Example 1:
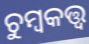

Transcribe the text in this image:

ଚୁମ୍ବକତ୍ତ୍ୱ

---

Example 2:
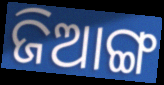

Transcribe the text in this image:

ଜିଆଙ୍ଗ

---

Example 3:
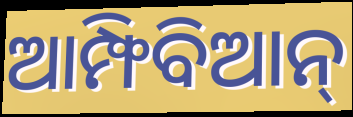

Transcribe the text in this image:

ଆମ୍ଫିବିଆନ୍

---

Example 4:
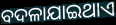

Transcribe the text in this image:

ବଦଳାଯାଇଥାଏ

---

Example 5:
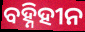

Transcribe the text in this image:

ବହ୍ନିହୀନ